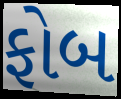
ફોબ